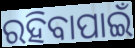
ରହିବାପାଇଁ